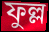
ফুল্ল